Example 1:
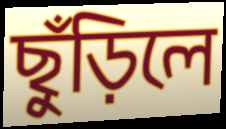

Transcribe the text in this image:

ছুঁড়িলে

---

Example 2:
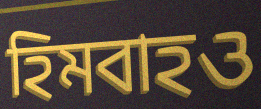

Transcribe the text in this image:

হিমবাহও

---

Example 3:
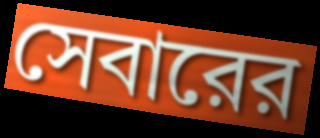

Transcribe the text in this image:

সেবারের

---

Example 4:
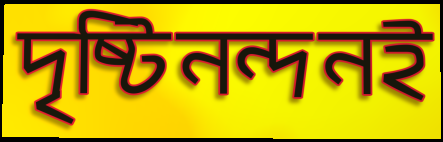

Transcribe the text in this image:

দৃষ্টিনন্দনই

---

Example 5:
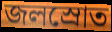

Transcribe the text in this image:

জলস্রোত